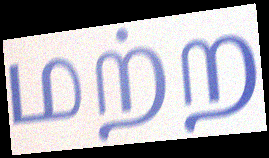
மற்ற